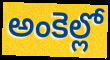
అంకెల్లో